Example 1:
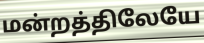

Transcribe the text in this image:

மன்றத்திலேயே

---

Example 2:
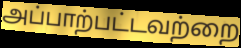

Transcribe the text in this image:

அப்பாற்பட்டவற்றை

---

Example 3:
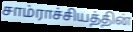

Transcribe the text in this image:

சாம்ராச்சியத்தின்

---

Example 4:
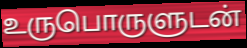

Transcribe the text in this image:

உருபொருளுடன்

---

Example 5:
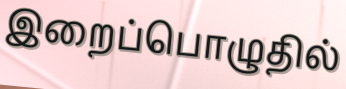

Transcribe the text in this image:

இறைப்பொழுதில்